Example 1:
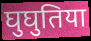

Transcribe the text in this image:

घुघुतिया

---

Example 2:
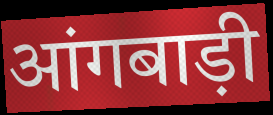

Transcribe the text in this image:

आंगबाड़ी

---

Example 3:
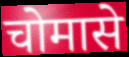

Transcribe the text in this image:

चोमासे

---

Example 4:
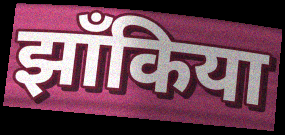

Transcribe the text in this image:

झाँकिया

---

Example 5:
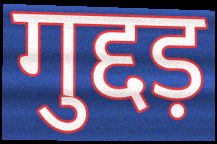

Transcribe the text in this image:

गुद्दड़